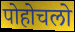
पोहोचलो